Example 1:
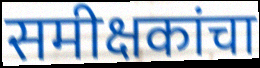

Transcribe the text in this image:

समीक्षकांचा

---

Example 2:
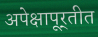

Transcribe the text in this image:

अपेक्षापूर्तीत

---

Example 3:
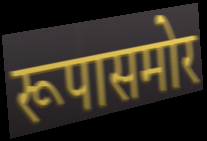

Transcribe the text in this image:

रूपासमोर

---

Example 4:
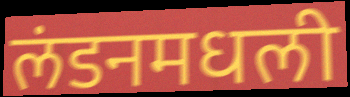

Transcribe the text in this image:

लंडनमधली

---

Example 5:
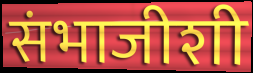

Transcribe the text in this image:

संभाजीशी